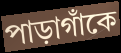
পাড়াগাঁকে